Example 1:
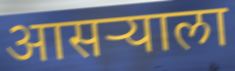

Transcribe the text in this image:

आसऱ्याला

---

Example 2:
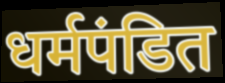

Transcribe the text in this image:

धर्मपंडित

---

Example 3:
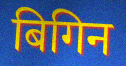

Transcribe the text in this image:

बिगिन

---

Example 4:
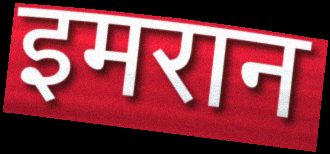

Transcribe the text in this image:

इमरान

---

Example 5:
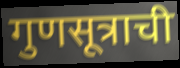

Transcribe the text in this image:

गुणसूत्राची